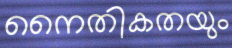
നൈതികതയും